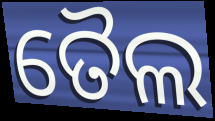
ତୈଲ